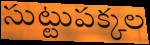
సుట్టుపక్కల